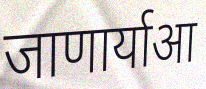
जाणार्याआ